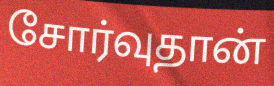
சோர்வுதான்